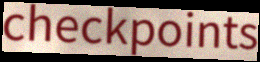
checkpoints